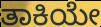
ತಾಕಿಯೇ